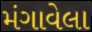
મંગાવેલા